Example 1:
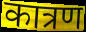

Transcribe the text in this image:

कात्रण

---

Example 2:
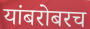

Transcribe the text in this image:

यांबरोबरच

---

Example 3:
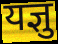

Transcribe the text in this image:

यज्ञु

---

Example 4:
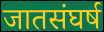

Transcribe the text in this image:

जातसंघर्ष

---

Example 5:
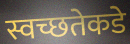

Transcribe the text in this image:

स्वच्छतेकडे